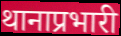
थानाप्रभारी